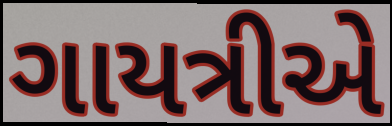
ગાયત્રીએ